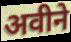
अवीने